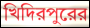
খিদিরপুরের